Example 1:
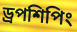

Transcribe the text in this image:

ড্রপশিপিং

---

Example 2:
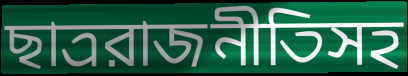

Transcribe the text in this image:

ছাত্ররাজনীতিসহ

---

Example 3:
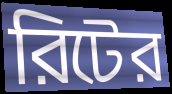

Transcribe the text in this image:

রিটের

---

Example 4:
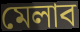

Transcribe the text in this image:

মেলাব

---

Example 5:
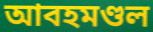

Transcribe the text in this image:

আবহমণ্ডল